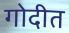
गोदीत